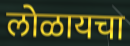
लोळायचा